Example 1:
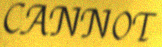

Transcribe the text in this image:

CANNOT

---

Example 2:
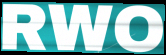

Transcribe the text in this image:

RWO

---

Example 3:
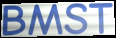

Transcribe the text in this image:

BMST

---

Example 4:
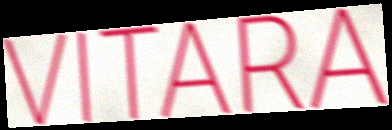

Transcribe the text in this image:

VITARA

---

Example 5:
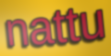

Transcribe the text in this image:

nattu